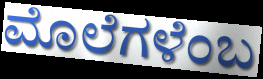
ಮೊಲೆಗಳೆಂಬ